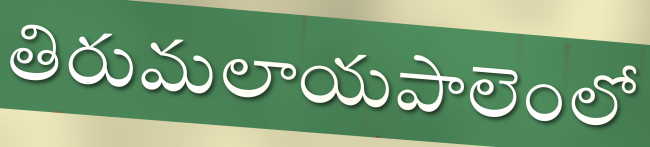
తిరుమలాయపాలెంలో